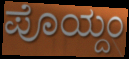
ಪೊಯ್ದಂ